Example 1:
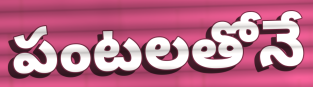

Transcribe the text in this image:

పంటలతోనే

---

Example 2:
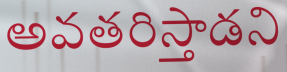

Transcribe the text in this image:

అవతరిస్తాడని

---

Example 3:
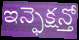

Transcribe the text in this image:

ఇన్ఫెక్షన్తో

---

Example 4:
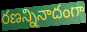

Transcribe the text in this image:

రణన్నినాదంగా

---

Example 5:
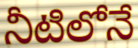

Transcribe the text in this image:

నీటిలోనే